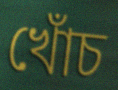
খোঁচ